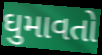
ઘુમાવતો